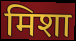
मिशा